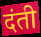
दंती